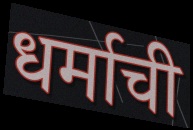
धर्माची